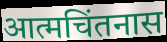
आत्मचिंतनास